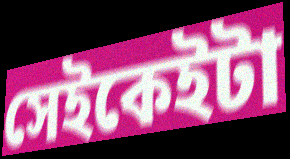
সেইকেইটা